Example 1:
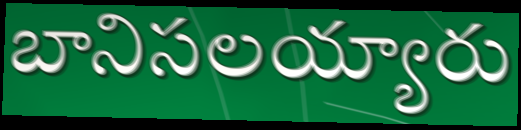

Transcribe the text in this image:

బానిసలయ్యారు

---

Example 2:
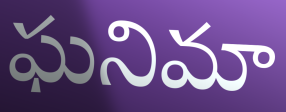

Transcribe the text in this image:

ఘనిమా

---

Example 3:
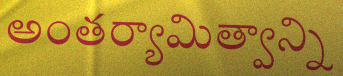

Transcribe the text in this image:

అంతర్యామిత్వాన్ని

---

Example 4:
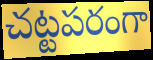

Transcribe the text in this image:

చట్టపరంగా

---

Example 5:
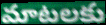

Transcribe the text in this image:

మాటలకు